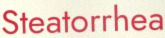
Steatorrhea